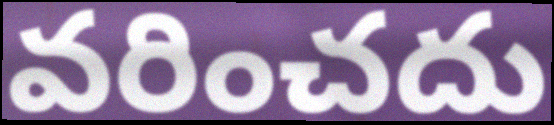
వరించదు